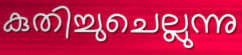
കുതിച്ചുചെല്ലുന്നു